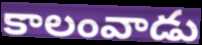
కాలంవాడు